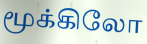
மூக்கிலோ